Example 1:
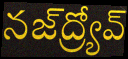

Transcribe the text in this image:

నజ్‌ద్ర్యోవ్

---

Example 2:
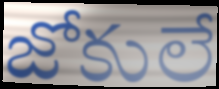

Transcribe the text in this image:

జోకులే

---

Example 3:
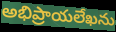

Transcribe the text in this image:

అభిప్రాయలేఖను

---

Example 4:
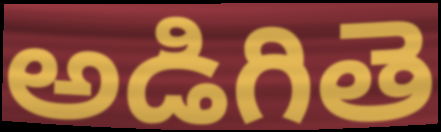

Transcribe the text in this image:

అడిగితె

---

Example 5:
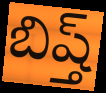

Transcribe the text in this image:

బిష్త్